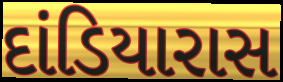
દાંડિયારાસ